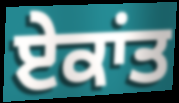
ਏਕਾਂਤ